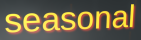
seasonal